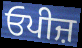
ਓਪੀਜ਼